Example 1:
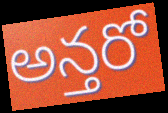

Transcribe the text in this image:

అన్తరో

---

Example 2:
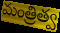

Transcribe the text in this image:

మంత్రిత్వ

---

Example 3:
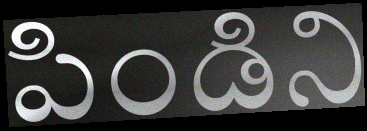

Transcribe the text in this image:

పిండిని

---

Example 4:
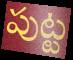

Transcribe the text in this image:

పుట్ట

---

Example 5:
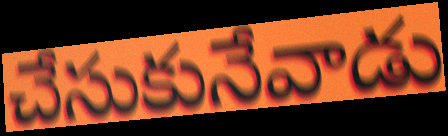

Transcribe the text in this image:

చేసుకునేవాడు